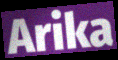
Arika